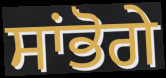
ਸਾਂਭੋਗੇ